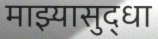
माझ्यासुद्धा